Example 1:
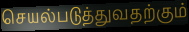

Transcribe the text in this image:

செயல்படுத்துவதற்கும்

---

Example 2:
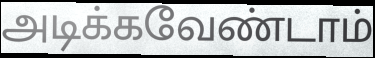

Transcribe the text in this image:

அடிக்கவேண்டாம்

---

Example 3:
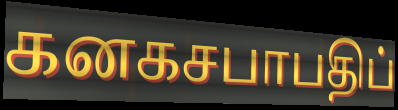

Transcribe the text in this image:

கனகசபாபதிப்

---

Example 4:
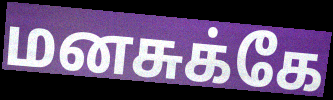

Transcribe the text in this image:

மனசுக்கே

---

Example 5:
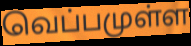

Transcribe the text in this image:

வெப்பமுள்ள